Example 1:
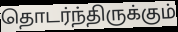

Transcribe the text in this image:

தொடர்ந்திருக்கும்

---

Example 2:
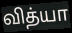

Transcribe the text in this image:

வித்யா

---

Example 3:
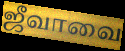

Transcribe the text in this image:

ஜீவாவை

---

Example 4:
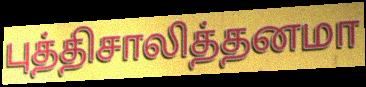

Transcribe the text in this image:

புத்திசாலித்தனமா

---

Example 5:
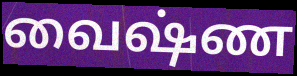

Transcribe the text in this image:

வைஷ்ண